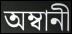
অম্বানী